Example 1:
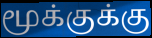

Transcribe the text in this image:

மூக்குக்கு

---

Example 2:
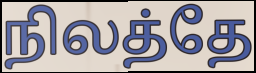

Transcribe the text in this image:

நிலத்தே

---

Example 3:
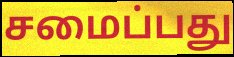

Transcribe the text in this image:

சமைப்பது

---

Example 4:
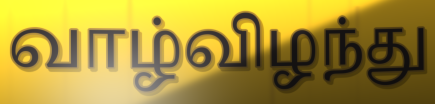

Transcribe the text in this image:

வாழ்விழந்து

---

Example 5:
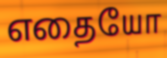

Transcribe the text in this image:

எதையோ